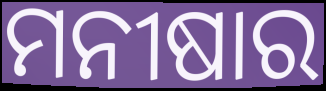
ମନୀଷାର